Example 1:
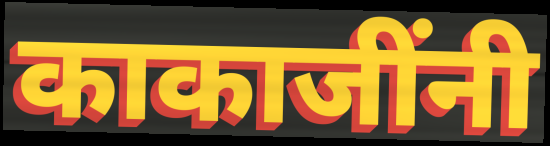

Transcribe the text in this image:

काकाजींनी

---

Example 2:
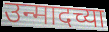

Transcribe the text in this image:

उन्मादच्या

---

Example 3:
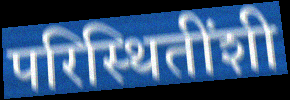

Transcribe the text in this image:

परिस्थितींशी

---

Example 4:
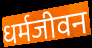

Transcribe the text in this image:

धर्मजीवन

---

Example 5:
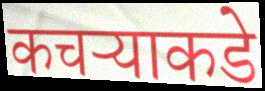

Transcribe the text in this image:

कचऱ्याकडे